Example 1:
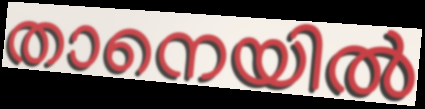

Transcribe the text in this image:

താനെയിൽ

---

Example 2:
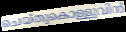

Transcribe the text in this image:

ചെയ്തുകൊള്ളുവിൻ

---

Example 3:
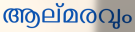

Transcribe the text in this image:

ആല്മരവും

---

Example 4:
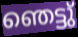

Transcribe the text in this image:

ഞെട്ടു്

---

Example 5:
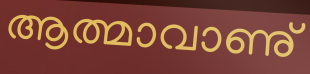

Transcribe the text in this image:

ആത്മാവാണു്